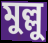
মুল্লু